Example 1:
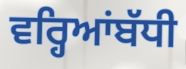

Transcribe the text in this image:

ਵਰ੍ਹਿਆਂਬੱਧੀ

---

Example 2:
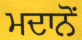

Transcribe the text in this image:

ਮਦਾਨੋਂ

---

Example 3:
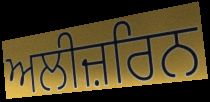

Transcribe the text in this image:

ਅਲੀਜ਼ਰਿਨ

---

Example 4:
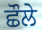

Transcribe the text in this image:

ਛੌਲੇ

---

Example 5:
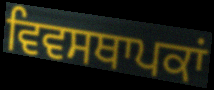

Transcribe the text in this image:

ਵਿਵਸਥਾਪਕਾਂ